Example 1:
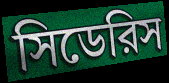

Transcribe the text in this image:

সিডেরিস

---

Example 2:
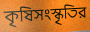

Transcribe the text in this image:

কৃষিসংস্কৃতির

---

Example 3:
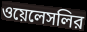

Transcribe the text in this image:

ওয়েলেসলির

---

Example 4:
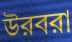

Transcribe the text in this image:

উরবরা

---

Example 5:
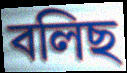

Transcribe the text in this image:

বলিছ